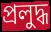
প্রলুদ্ধ